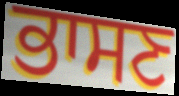
ਭਾਸਣ